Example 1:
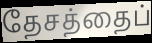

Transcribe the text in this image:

தேசத்தைப்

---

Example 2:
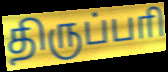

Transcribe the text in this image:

திருப்பரி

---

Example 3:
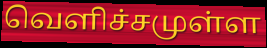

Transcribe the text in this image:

வெளிச்சமுள்ள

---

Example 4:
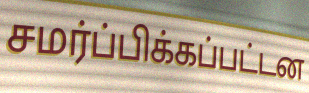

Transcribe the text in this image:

சமர்ப்பிக்கப்பட்டன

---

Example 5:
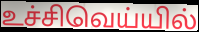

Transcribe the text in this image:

உச்சிவெய்யில்